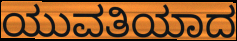
ಯುವತಿಯಾದ